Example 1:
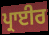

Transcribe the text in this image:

ਪ੍ਰਾਈਰ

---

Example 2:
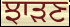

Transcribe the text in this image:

ਝਾੜਣ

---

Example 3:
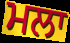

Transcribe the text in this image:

ਮਲਾ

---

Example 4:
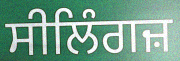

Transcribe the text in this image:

ਸੀਲਿੰਗਜ਼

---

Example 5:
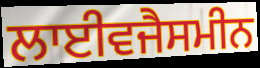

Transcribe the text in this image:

ਲਾਈਵਜੈਸਮੀਨ